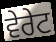
ਵੇਰੇਟ